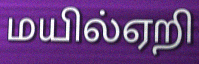
மயில்ஏறி